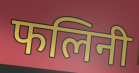
फलिनी